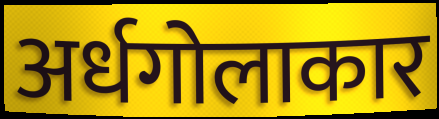
अर्धगोलाकार